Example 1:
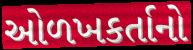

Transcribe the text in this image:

ઓળખકર્તાનો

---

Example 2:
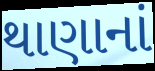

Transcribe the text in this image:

થાણાનાં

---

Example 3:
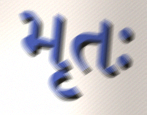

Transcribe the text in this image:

મૃતઃ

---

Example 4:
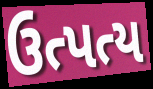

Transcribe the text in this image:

ઉત્પત્ય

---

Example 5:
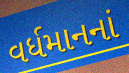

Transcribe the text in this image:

વર્ધમાનનાં